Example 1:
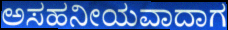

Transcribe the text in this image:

ಅಸಹನೀಯವಾದಾಗ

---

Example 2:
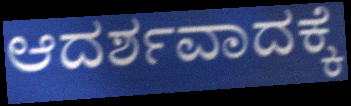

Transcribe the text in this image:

ಆದರ್ಶವಾದಕ್ಕೆ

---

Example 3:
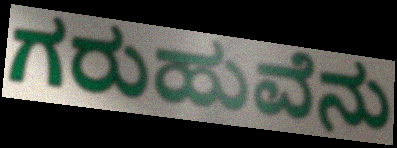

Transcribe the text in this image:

ಗರುಹುವೆನು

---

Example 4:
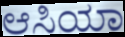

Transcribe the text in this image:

ಆಸಿಯಾ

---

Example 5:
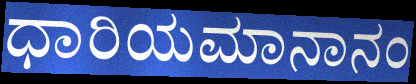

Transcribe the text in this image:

ಧಾರಿಯಮಾನಾನಂ